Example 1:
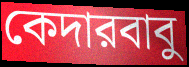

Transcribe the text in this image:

কেদারবাবু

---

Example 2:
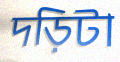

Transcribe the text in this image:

দড়িটা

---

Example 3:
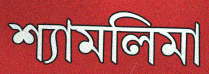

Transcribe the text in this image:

শ্যামলিমা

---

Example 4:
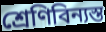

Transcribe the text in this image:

শ্রেণিবিন্যস্ত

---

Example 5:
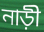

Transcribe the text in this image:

নাড়ী